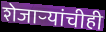
शेजाऱ्यांचीही